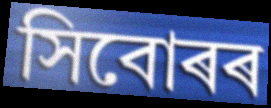
সিবোৰৰ